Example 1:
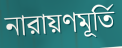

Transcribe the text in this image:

নারায়ণমূর্তি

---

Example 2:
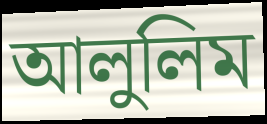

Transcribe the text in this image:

আলুলিম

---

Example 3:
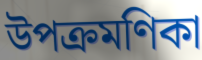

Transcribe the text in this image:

উপক্রমণিকা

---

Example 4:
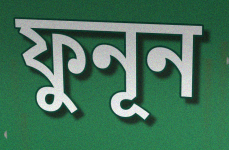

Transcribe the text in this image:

ফুনূন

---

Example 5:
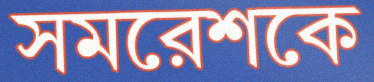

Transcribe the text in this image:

সমরেশকে